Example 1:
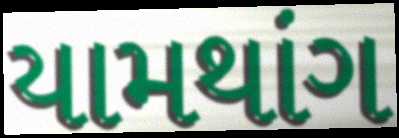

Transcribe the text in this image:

યામથાંગ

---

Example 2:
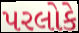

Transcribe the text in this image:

પરલોકે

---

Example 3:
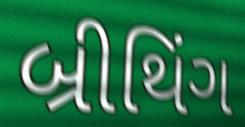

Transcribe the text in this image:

બ્રીથિંગ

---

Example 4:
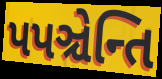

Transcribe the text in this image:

પપઞ્ચેન્તિ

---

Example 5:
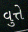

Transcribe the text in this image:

વુત્તે